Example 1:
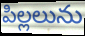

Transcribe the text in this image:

పిల్లలును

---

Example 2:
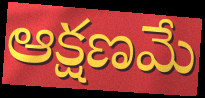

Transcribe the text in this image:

ఆక్షణమే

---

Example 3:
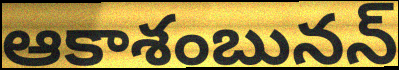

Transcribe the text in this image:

ఆకాశంబునన్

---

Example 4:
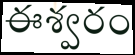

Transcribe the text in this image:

ఈశ్వరం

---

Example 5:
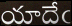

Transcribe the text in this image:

యాదేఁ